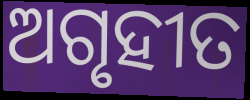
ଅଗୃହୀତ